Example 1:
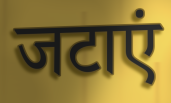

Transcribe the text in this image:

जटाएं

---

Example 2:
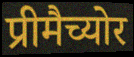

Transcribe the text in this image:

प्रीमैच्योर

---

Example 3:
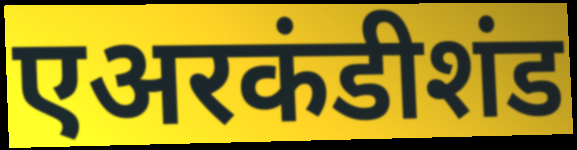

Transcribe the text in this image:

एअरकंडीशंड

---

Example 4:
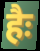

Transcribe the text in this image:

हैः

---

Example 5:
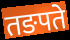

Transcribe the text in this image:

तङपते